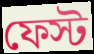
ফেস্ট